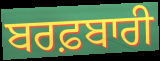
ਬਰਫ਼ਬਾਰੀ